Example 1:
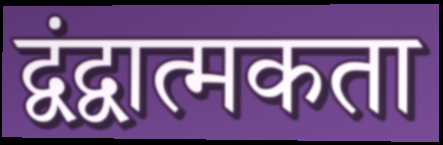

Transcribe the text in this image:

द्वंद्वात्मकता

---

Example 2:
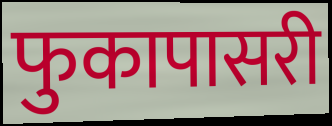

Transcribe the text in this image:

फुकापासरी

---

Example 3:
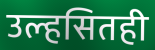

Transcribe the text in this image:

उल्हसितही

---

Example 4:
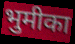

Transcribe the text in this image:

भुमीका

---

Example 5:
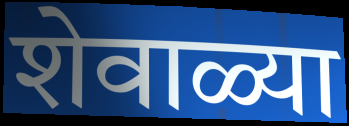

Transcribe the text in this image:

शेवाळ्या